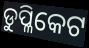
ଡୁପ୍ଳିକେଟ